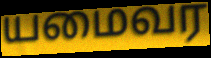
யமைவர